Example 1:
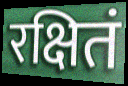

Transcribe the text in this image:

रक्षितं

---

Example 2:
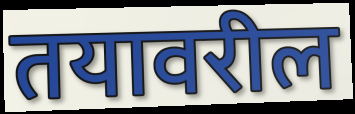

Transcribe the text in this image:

तयावरील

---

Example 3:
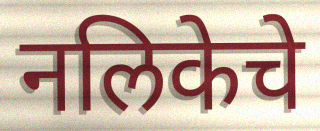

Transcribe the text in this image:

नलिकेचे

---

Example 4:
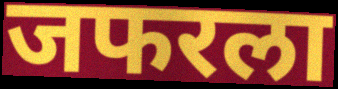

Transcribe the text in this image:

जफरला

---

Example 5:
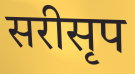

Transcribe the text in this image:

सरीसृप